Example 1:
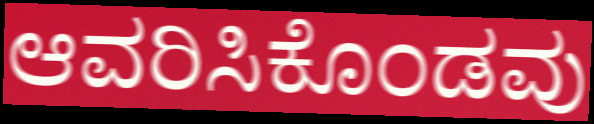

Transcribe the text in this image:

ಆವರಿಸಿಕೊಂಡವು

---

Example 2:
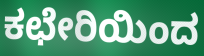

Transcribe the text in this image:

ಕಛೇರಿಯಿಂದ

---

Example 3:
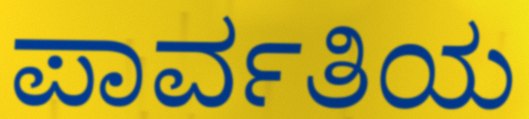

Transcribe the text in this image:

ಪಾರ್ವತಿಯ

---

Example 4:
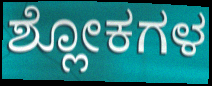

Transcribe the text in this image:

ಶ್ಲೋಕಗಳ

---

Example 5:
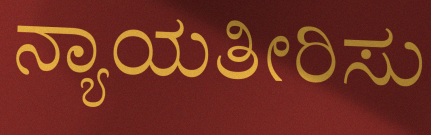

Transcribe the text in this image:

ನ್ಯಾಯತೀರಿಸು